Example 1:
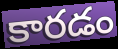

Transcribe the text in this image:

కారడం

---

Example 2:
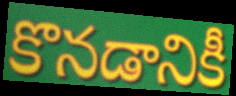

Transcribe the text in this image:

కొనడానికీ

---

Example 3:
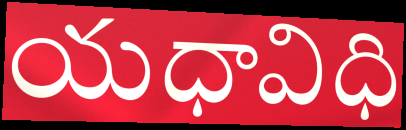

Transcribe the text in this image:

యధావిధి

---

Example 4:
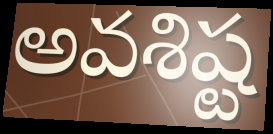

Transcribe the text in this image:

అవశిష్ట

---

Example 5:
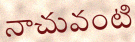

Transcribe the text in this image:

నాచువంటి